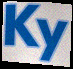
Ky